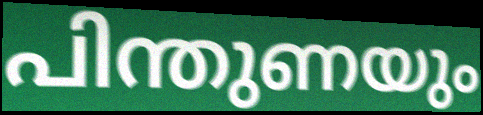
പിന്തുണയും